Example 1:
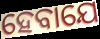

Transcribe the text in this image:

ହେବାଯେ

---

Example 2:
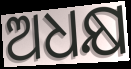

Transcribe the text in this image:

ଅଧକ୍ଷ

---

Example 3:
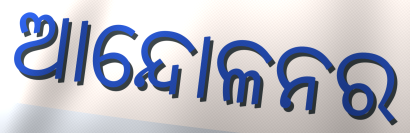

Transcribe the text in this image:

ଆନ୍ଦୋଳନର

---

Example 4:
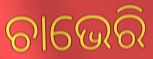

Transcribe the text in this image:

ଚାଭେରି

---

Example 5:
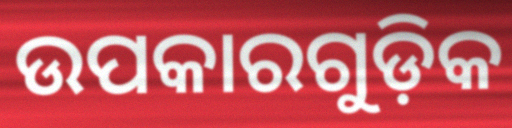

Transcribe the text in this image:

ଉପକାରଗୁଡ଼ିକ